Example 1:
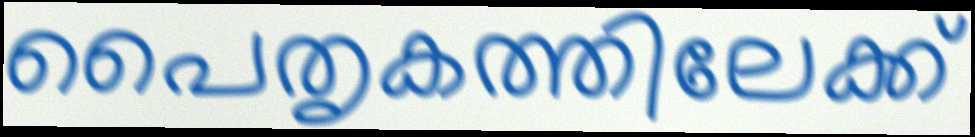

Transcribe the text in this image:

പൈതൃകത്തിലേക്ക്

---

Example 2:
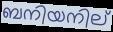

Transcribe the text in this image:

ബനിയനില്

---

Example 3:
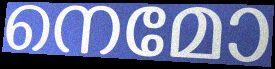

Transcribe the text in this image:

നെമോ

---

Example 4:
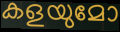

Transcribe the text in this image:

കളയുമോ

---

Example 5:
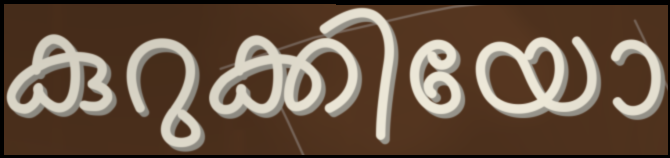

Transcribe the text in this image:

കുറുക്കിയോ